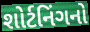
શોર્ટનિંગનો